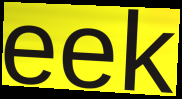
eek